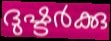
ദുഷ്ടർക്കു